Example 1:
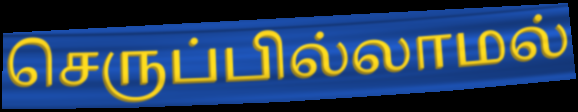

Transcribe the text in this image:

செருப்பில்லாமல்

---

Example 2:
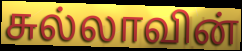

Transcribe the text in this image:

சுல்லாவின்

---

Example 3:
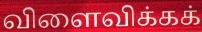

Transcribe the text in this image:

விளைவிக்கக்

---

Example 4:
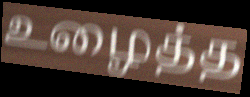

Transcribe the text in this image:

உழைத்த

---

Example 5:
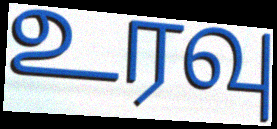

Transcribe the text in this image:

உரவு